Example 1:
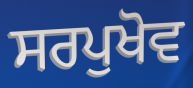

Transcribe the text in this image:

ਸਰਪੁਖੋਵ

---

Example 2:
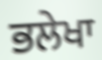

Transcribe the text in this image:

ਭਲੇਖਾ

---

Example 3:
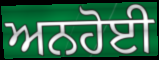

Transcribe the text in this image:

ਅਨਹੋਈ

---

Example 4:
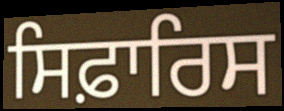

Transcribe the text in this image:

ਸਿਫ਼ਾਰਿਸ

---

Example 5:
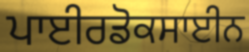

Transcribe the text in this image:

ਪਾਈਰਡੋਕਸਾਈਨ